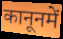
कानूनमें